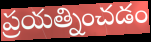
ప్రయత్నించడం